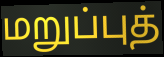
மறுப்புத்